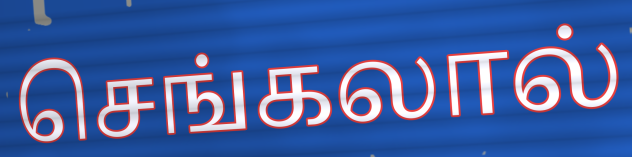
செங்கலால்